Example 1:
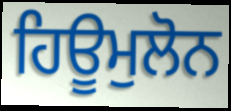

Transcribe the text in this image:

ਹਿਊਮੁਲੋਨ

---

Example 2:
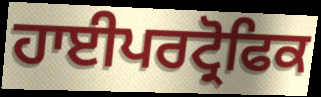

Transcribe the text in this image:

ਹਾਈਪਰਟ੍ਰੋਫਿਕ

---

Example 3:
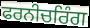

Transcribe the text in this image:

ਫਰਨੀਚਰਿੰਗ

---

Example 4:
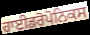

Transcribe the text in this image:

ਹਾਈਡਰੋਪੋਨਿਕਸ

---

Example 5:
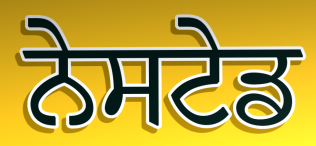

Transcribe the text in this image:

ਨੇਸਟੇਡ